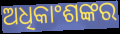
ଅଧିକାଂଶଙ୍କର